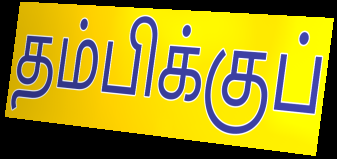
தம்பிக்குப்